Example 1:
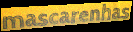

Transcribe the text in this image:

mascarenhas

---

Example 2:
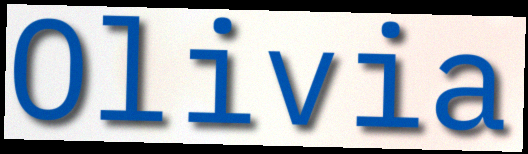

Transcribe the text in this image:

Olivia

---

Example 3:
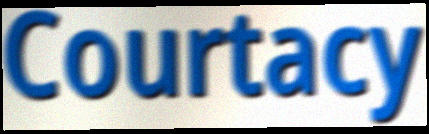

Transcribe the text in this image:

Courtacy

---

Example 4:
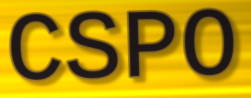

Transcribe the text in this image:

CSPO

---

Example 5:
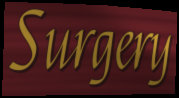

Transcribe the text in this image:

Surgery